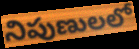
నిపుణులలో